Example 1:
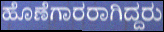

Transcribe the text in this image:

ಹೊಣೆಗಾರರಾಗಿದ್ದರು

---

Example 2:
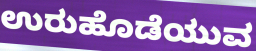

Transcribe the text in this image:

ಉರುಹೊಡೆಯುವ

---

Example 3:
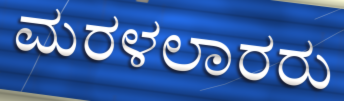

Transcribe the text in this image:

ಮರಳಲಾರರು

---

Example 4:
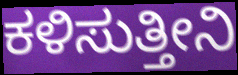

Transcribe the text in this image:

ಕಳಿಸುತ್ತೀನಿ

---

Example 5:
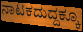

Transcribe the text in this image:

ನಾಟಕದುದ್ದಕ್ಕೂ